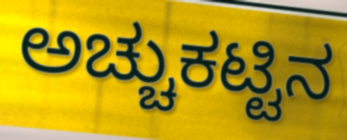
ಅಚ್ಚುಕಟ್ಟಿನ